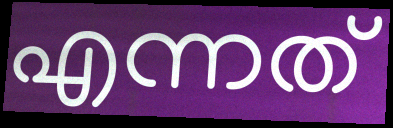
എന്നത്